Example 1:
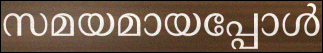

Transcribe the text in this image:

സമയമായപ്പോൾ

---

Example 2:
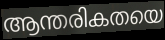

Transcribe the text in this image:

ആന്തരികതയെ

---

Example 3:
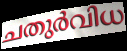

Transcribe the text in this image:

ചതുർവിധ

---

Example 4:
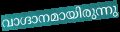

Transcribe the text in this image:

വാഗ്ദാനമായിരുന്നു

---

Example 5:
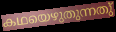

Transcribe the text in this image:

കഥയെഴുതുന്നതു്